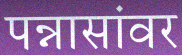
पन्नासांवर